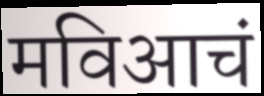
मविआचं